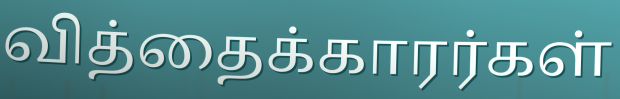
வித்தைக்காரர்கள்